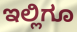
ಇಲ್ಲಿಗೂ